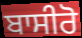
ਬਾਸੀਰੋ